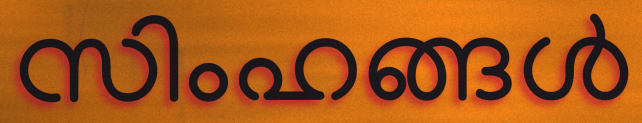
സിംഹങ്ങൾ